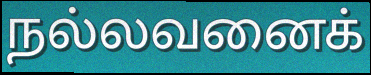
நல்லவனைக்